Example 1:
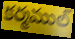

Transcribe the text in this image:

కర్మముల్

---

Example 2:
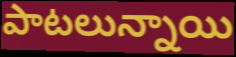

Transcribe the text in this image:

పాటలున్నాయి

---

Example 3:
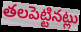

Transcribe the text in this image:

తలపెట్టినట్లు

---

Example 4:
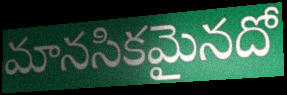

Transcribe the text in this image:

మానసికమైనదో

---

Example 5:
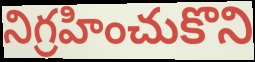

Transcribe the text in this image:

నిగ్రహించుకొని